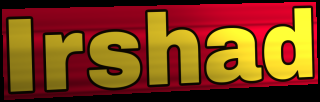
Irshad